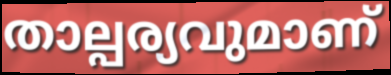
താല്പര്യവുമാണ്